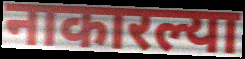
नाकारल्या